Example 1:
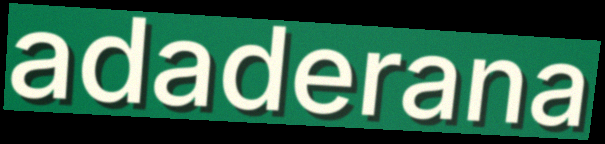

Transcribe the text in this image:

adaderana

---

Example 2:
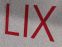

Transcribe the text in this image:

LIX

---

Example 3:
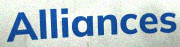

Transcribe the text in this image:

Alliances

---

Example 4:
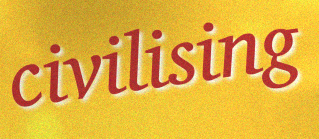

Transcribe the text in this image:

civilising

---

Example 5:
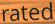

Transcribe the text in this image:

rated